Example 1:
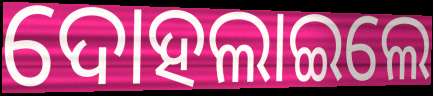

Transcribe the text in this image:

ଦୋହଲାଇଲେ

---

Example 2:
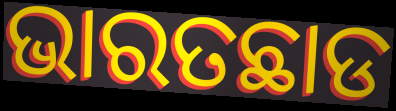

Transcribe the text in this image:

ଭାରତଛାଡ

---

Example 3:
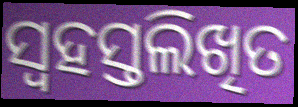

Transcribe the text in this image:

ସ୍ୱହସ୍ତଲିଖିତ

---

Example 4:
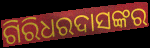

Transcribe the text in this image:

ଗିରିଧରଦାସଙ୍କର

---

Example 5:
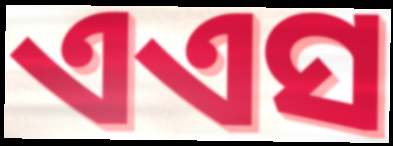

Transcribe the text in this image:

ଏଏସ